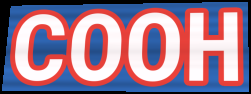
COOH